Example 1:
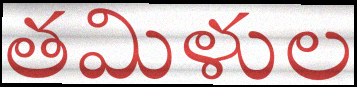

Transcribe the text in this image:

తమిళుల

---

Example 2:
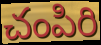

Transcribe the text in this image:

చంపిరి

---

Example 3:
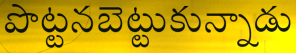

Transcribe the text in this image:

పొట్టనబెట్టుకున్నాడు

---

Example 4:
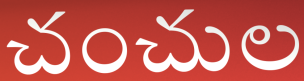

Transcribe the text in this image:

చంచుల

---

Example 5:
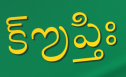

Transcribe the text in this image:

క్ఌప్తిః